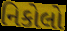
નિકોલો